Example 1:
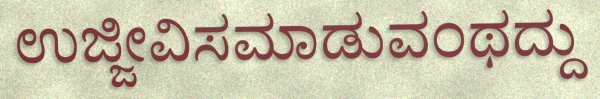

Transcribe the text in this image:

ಉಜ್ಜೀವಿಸಮಾಡುವಂಥದ್ದು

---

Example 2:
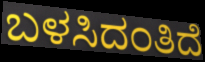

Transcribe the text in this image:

ಬಳಸಿದಂತಿದೆ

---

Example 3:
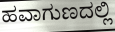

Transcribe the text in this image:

ಹವಾಗುಣದಲ್ಲಿ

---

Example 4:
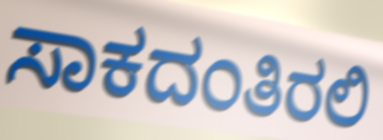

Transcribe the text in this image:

ಸಾಕದಂತಿರಲಿ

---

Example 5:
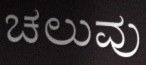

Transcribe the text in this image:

ಚಲುವು